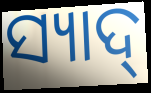
ସ୍ୟାଦ୍